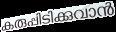
കരുപ്പിടിക്കുവാൻ